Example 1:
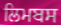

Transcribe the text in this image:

ਲਿਮਬਸ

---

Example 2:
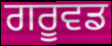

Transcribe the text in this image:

ਗਰੂਵਡ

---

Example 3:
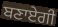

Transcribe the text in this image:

ਬਣਾਏਗੀ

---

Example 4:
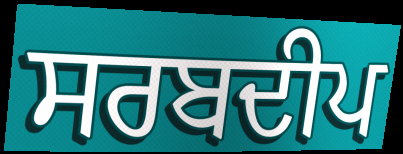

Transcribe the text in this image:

ਸਰਬਦੀਪ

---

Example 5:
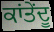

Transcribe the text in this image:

ਕਾਂਤੇਂਦੂ